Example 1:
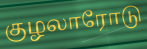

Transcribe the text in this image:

குழலாரோடு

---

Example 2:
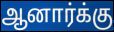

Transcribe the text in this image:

ஆனார்க்கு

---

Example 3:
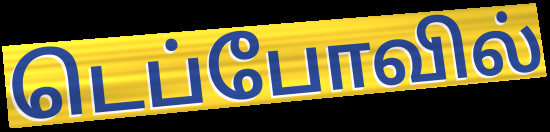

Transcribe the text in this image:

டெப்போவில்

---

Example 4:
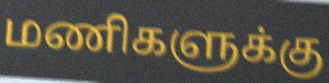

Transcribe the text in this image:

மணிகளுக்கு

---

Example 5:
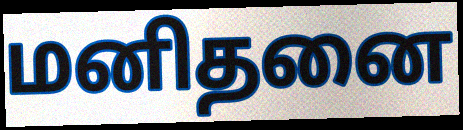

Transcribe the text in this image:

மனிதனை